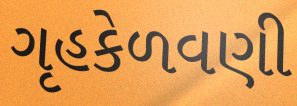
ગૃહકેળવણી